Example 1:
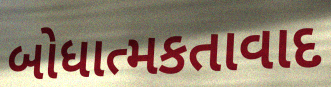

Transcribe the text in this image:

બોધાત્મકતાવાદ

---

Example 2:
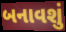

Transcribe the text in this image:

બનાવશું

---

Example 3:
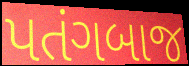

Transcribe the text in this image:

પતંગબાજ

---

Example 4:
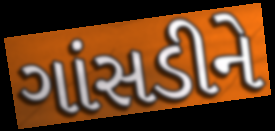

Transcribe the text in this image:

ગાંસડીને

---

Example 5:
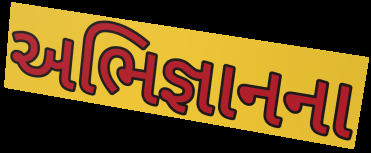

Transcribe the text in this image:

અભિજ્ઞાનના